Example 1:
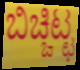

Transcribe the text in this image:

ಬಿಚ್ಚಿಟ್ಟ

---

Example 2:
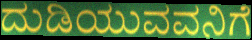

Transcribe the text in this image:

ದುಡಿಯುವವನಿಗೆ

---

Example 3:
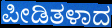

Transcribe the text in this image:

ಪೀಡಿತಳಾದ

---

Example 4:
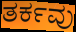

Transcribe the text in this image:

ತರ್ಕವು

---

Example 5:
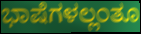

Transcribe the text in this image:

ಭಾಷೆಗಳಲ್ಲಂತೂ